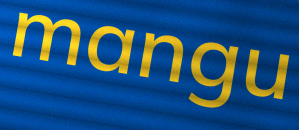
mangu